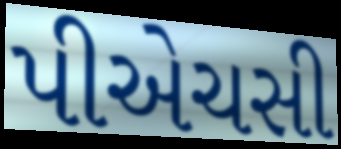
પીએચસી